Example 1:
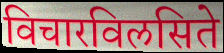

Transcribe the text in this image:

विचारविलसिते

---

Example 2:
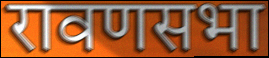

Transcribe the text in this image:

रावणसभा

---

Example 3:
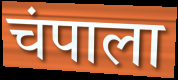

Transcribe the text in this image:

चंपाला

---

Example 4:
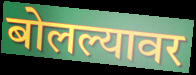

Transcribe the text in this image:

बोलल्यावर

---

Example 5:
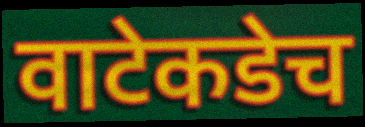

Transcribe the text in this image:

वाटेकडेच